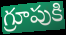
గ్రూపుకి